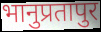
भानुप्रतापुर